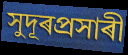
সুদূৰপ্ৰসাৰী